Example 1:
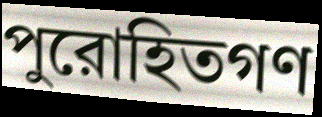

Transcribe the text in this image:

পুরোহিতগণ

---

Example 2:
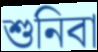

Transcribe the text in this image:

শুনিবা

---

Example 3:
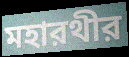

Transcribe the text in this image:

মহারথীর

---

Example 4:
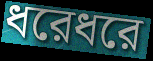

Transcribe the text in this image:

ধরেধরে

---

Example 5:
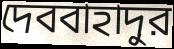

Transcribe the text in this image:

দেববাহাদুর